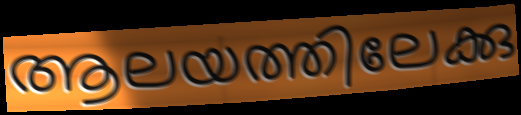
ആലയത്തിലേക്കു